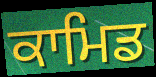
ਕਾਮਿਡ